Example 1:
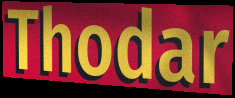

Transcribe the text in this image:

Thodar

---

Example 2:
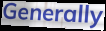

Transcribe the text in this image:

Generally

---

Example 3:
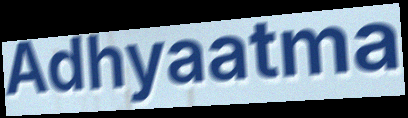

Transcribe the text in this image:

Adhyaatma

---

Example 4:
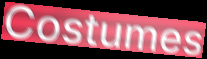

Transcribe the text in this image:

Costumes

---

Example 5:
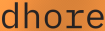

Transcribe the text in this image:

dhore